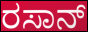
ರಸಾನ್